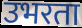
उभरता